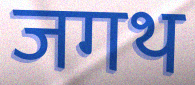
जगथ